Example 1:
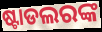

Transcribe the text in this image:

ଷ୍ଟାଡଲରଙ୍କ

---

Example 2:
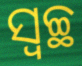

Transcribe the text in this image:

ସ୍ଵଚ୍ଛ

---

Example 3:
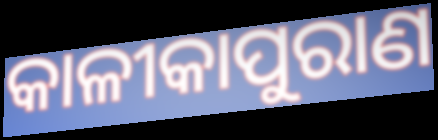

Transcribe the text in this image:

କାଳୀକାପୁରାଣ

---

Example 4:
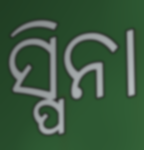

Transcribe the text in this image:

ସ୍ପିନା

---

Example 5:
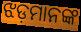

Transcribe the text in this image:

ଝଡ଼ମାନଙ୍କ